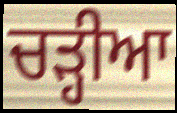
ਚੜ੍ਹੀਆ